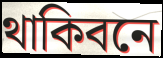
থাকিবনে